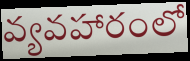
వ్యవహారంలో